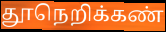
தூநெறிக்கண்